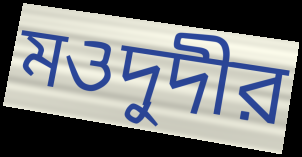
মওদুদীর